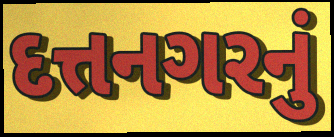
દત્તનગરનું